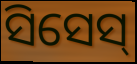
ସିସେସ୍